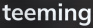
teeming